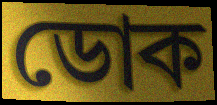
ডোক